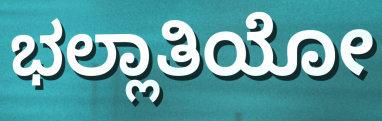
ಭಲ್ಲಾತಿಯೋ